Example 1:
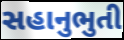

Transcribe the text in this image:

સહાનુભુતી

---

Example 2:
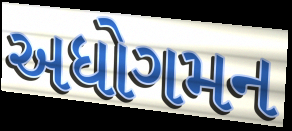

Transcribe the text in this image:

અધોગમન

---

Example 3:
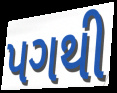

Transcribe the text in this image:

પગથી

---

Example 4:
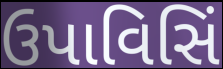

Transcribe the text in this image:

ઉપાવિસિં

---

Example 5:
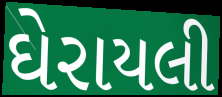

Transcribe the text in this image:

ઘેરાયલી